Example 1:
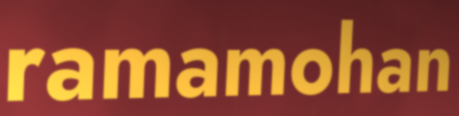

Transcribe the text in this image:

ramamohan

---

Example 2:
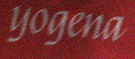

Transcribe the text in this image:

yogena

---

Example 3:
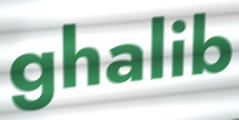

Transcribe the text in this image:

ghalib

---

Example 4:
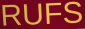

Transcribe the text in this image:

RUFS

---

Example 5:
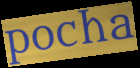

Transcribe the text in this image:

pocha